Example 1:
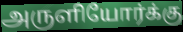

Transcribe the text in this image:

அருளியோர்க்கு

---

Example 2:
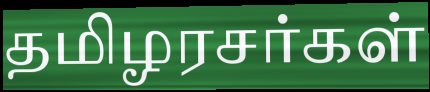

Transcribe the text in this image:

தமிழரசர்கள்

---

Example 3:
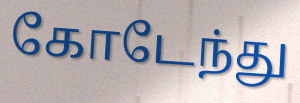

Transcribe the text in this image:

கோடேந்து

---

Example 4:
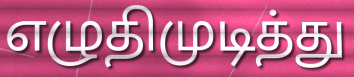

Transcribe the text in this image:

எழுதிமுடித்து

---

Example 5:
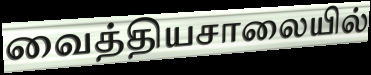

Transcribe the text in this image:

வைத்தியசாலையில்